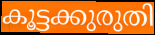
കൂട്ടക്കുരുതി